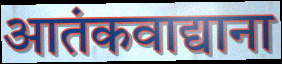
आतंकवाद्याना